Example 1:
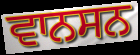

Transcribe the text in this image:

ਵਾਨਸਨ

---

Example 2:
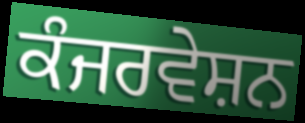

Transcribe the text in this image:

ਕੰਜਰਵੇਸ਼ਨ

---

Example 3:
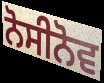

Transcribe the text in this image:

ਨੋਸੀਨੋਵ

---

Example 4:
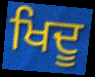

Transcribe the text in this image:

ਖਿਦੂ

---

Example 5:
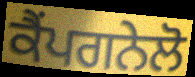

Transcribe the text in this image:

ਕੈਂਪਗਨੇਲੋ